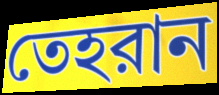
তেহরান